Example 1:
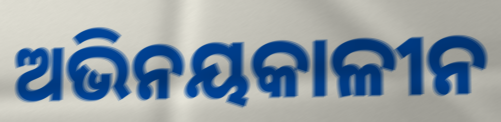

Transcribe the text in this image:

ଅଭିନୟକାଳୀନ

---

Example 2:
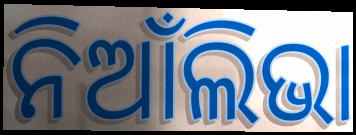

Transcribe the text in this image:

ନିଆଁଲିଭା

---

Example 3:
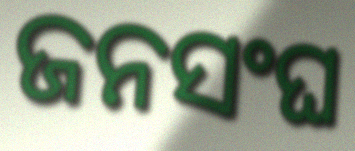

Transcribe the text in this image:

ଜନସଂଘ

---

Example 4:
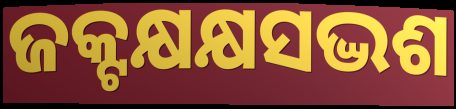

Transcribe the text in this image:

ଜକ୍ଟକ୍ଷକ୍ଷସଦ୍ଭଶ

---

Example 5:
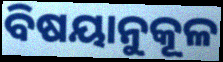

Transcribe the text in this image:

ବିଷୟାନୁକୂଳ